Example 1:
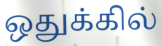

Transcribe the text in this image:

ஒதுக்கில்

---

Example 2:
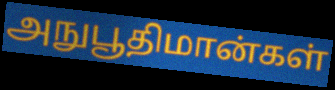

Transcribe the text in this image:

அநுபூதிமான்கள்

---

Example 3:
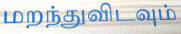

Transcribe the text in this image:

மறந்துவிடவும்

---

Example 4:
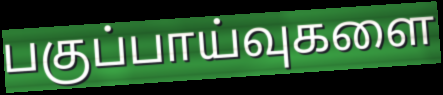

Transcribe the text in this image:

பகுப்பாய்வுகளை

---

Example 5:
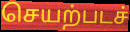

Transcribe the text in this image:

செயற்படச்